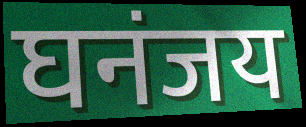
घनंजय